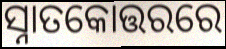
ସ୍ନାତକୋତ୍ତରରେ